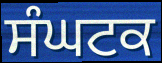
ਸੰਘਟਕ